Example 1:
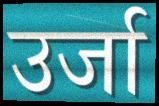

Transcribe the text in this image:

उर्जा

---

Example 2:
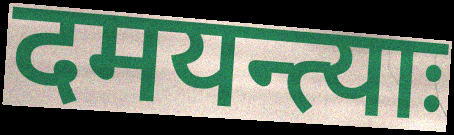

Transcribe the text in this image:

दमयन्त्याः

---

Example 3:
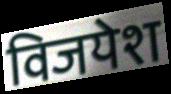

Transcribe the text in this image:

विजयेश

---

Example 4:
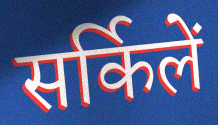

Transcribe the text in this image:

सर्किलें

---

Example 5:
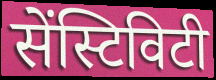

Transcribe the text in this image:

सेंस्टिविटी